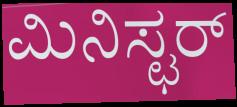
ಮಿನಿಸ್ಟರ್